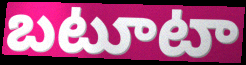
బటూటా